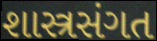
શાસ્ત્રસંગત